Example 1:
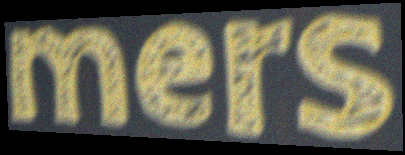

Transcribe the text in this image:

mers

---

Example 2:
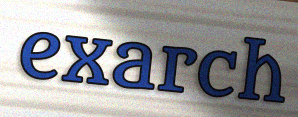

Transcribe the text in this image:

exarch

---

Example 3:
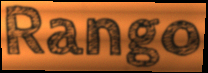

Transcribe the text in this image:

Rango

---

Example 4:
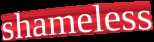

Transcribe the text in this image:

shameless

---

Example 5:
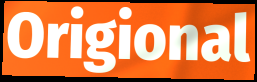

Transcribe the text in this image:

Origional